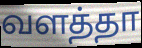
வளத்தா